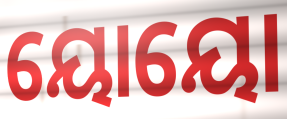
ୟୋୟୋ